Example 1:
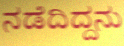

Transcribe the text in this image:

ನಡೆದಿದ್ದನು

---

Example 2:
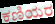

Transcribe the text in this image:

ಕಣಿಯರ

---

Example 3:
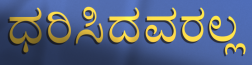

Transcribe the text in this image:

ಧರಿಸಿದವರಲ್ಲ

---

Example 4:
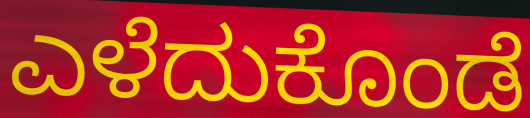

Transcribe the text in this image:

ಎಳೆದುಕೊಂಡೆ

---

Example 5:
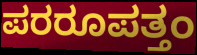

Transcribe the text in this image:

ಪರರೂಪತ್ತಂ